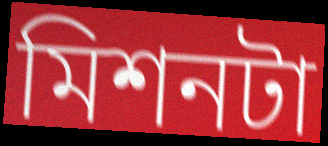
মিশনটা